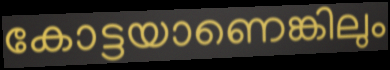
കോട്ടയാണെങ്കിലും